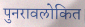
पुनरावलोकित